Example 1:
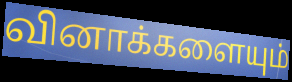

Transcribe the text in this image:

வினாக்களையும்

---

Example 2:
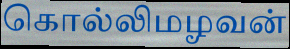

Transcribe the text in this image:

கொல்லிமழவன்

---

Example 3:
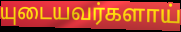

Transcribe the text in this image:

யுடையவர்களாய்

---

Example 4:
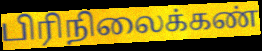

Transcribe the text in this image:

பிரிநிலைக்கண்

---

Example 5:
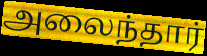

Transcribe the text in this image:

அலைந்தார்